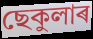
ছেকুলাৰ